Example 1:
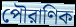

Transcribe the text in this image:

পৌরাণিক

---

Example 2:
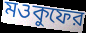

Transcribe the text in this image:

মওকুফের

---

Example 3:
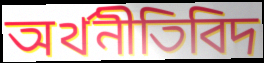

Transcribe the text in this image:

অর্থনীতিবিদ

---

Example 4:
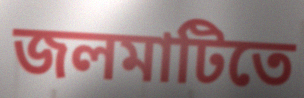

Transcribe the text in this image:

জলমাটিতে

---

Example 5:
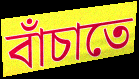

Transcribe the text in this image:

বাঁচাতে